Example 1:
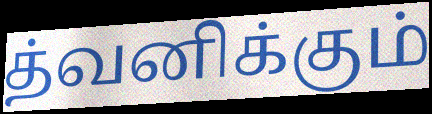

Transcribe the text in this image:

த்வனிக்கும்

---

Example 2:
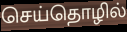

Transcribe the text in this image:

செய்தொழில்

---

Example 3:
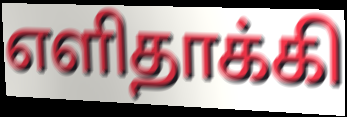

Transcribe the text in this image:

எளிதாக்கி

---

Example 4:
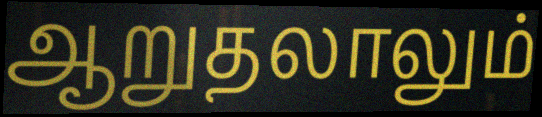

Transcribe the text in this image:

ஆறுதலாலும்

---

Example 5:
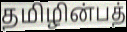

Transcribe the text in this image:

தமிழின்பத்